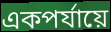
একপর্যায়ে